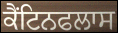
ਕੈਂਟਿਨਫਲਾਸ